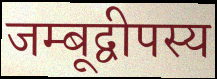
जम्बूद्वीपस्य